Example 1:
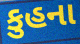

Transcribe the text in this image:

કુહના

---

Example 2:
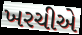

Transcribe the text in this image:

ખરચીએ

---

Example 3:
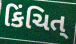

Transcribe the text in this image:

કિંચિત્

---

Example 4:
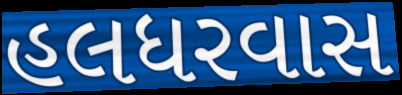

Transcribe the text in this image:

હલધરવાસ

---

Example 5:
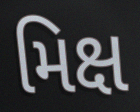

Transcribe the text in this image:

મિક્ષ